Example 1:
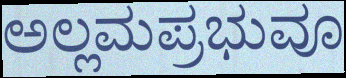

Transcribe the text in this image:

ಅಲ್ಲಮಪ್ರಭುವೂ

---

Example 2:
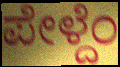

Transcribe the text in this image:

ಪೇಳ್ದೆಂ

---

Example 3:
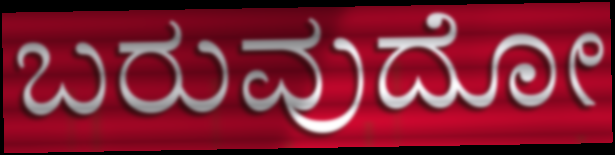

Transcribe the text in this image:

ಬರುವುದೋ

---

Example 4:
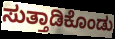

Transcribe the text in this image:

ಸುತ್ತಾಡಿಕೊಂಡು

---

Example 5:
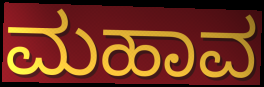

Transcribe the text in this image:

ಮಹಾವ